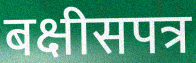
बक्षीसपत्र